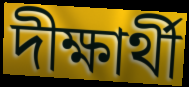
দীক্ষার্থী